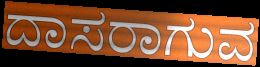
ದಾಸರಾಗುವ